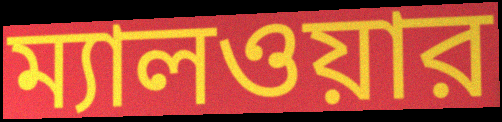
ম্যালওয়ার